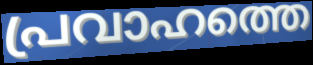
പ്രവാഹത്തെ